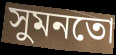
সুমনতো